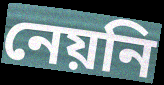
নেয়নি